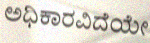
ಅಧಿಕಾರವಿದೆಯೇ